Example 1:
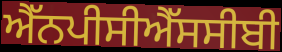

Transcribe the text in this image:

ਐੱਨਪੀਸੀਐੱਸਸੀਬੀ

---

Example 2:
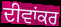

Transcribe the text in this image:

ਦੀਵਾਂਕਰ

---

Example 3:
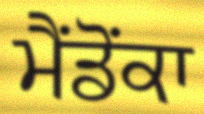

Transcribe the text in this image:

ਮੈਂਡੋਂਕਾ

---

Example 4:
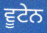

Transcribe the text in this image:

ਵੂਟੇਨ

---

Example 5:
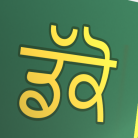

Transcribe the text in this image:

ਡੱਕੋ